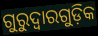
ଗୁରୁଦ୍ବାରଗୁଡ଼ିକ